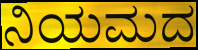
ನಿಯಮದ